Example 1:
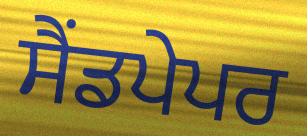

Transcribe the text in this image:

ਸੈਂਡਪੇਪਰ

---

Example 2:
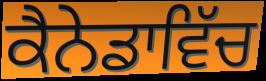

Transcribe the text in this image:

ਕੈਨੇਡਾਵਿੱਚ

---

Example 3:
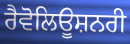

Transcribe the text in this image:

ਰੈਵੋਲਿਊਸ਼ਨਰੀ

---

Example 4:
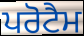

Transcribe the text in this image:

ਪਰੋਟੈਮ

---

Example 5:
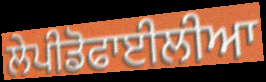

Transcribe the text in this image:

ਲੇਪੀਡੋਫਾਈਲੀਆ